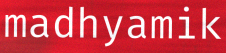
madhyamik